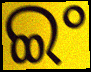
ଇଂ